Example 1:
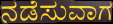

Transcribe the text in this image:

ನಡೆಸುವಾಗ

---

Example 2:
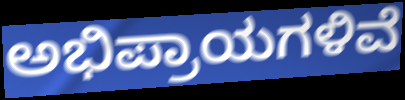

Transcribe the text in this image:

ಅಭಿಪ್ರಾಯಗಳಿವೆ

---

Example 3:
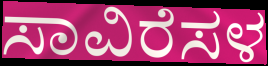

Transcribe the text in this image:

ಸಾವಿರೆಸಳ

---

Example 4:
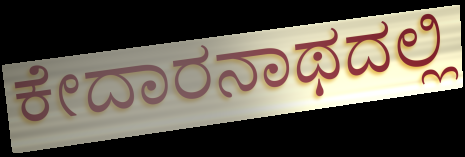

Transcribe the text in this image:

ಕೇದಾರನಾಥದಲ್ಲಿ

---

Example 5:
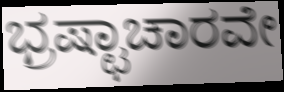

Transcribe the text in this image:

ಭ್ರಷ್ಟಾಚಾರವೇ